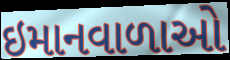
ઇમાનવાળાઓ